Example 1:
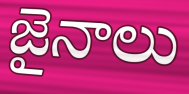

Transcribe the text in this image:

జైనాలు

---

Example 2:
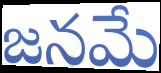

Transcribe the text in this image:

జనమే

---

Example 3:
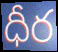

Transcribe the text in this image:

ధీర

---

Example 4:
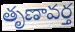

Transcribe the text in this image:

తృణావర్త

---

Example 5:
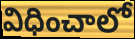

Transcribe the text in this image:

విధించాలో